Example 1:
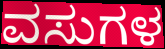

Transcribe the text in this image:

ವಸುಗಳ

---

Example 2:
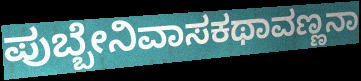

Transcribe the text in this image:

ಪುಬ್ಬೇನಿವಾಸಕಥಾವಣ್ಣನಾ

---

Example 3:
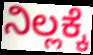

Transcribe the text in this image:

ನಿಲ್ಲಕ್ಕೆ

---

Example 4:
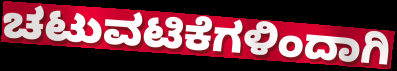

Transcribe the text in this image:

ಚಟುವಟಿಕೆಗಳಿಂದಾಗಿ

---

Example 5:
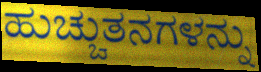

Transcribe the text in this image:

ಹುಚ್ಚುತನಗಳನ್ನು